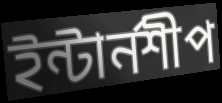
ইন্টার্নশীপ